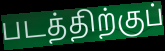
படத்திற்குப்